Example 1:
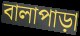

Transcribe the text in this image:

বালাপাড়া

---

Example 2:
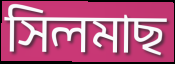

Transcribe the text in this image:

সিলমাছ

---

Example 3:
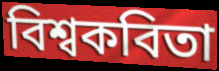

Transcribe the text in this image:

বিশ্বকবিতা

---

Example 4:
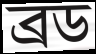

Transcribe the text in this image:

ব্রড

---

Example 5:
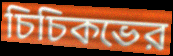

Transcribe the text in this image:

চিচিকভের